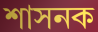
শাসনক